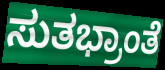
ಸುತಭ್ರಾಂತೆ